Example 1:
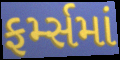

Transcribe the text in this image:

ફર્મ્સમાં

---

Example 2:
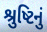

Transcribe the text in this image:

શ્રુષ્ટિનું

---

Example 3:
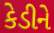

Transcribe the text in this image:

કેડીને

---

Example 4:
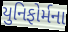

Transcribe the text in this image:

યુનિફોર્મના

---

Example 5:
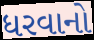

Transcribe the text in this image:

ધરવાનો